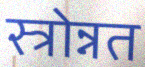
स्त्रोन्नत